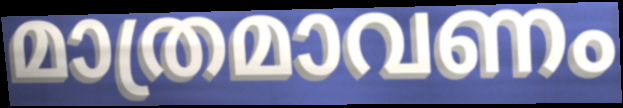
മാത്രമാവണം